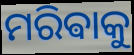
ମରିଵାକୁ